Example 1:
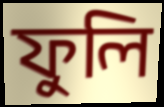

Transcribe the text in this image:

ফুলি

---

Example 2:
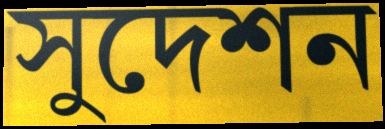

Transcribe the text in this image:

সুদেশন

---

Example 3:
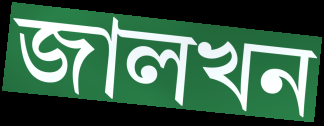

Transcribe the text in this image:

জালখন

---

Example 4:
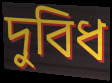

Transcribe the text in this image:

দুবিধ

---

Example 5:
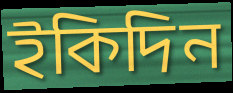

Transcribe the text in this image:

ইকিদিন